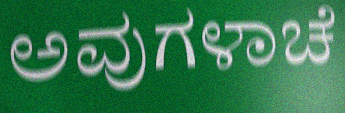
ಅವುಗಳಾಚೆ